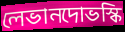
লেভানদোভস্কি